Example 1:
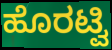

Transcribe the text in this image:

ಹೊರಟ್ವಿ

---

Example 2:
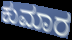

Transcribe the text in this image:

ಕುಮಾರ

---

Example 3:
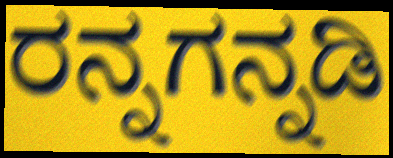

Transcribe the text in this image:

ರನ್ನಗನ್ನಡಿ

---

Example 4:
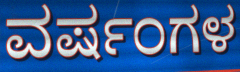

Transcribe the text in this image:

ವರ್ಷಂಗಳ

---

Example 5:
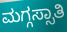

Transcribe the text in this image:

ಮಗ್ಗಸ್ಸಾತಿ